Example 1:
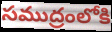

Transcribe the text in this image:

సముద్రంలోకి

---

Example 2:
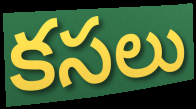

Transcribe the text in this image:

కసలు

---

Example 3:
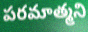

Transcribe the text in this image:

పరమాత్మని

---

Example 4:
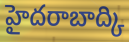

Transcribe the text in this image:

హైదరాబాద్కి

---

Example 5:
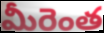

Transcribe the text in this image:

మీరెంత